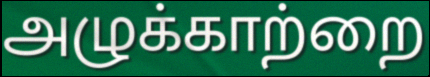
அழுக்காற்றை